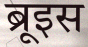
ब्रूइस